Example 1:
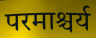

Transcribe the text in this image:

परमाश्चर्य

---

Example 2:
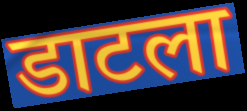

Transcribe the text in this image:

डाटला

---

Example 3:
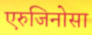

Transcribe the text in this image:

एरुजिनोसा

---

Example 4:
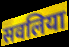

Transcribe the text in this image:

सवलिया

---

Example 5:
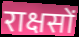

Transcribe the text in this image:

राक्षसों